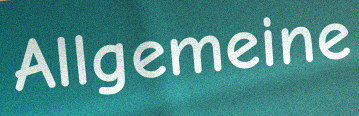
Allgemeine